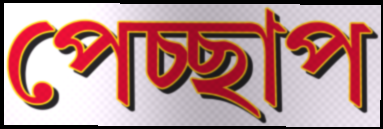
পেচ্ছাপ